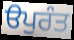
ੳਪੁਰੰਤ